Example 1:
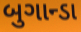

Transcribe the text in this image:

બુગાન્ડા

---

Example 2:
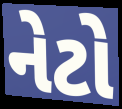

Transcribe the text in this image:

નેટો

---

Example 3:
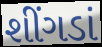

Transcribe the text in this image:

શીંગડાં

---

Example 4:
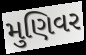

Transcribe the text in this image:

મુણિવર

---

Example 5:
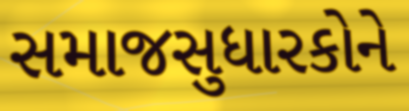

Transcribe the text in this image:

સમાજસુધારકોને